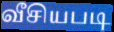
வீசியபடி